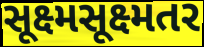
સૂક્ષ્મસૂક્ષ્મતર